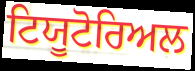
ਟਿਯੂਟੋਰਿਅਲ